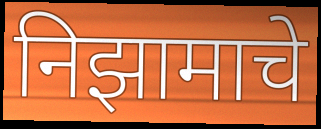
निझामाचे